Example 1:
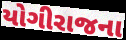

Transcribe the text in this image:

યોગીરાજના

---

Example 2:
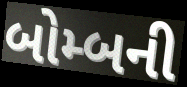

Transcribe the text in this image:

બોમ્બની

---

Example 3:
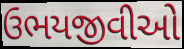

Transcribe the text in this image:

ઉભયજીવીઓ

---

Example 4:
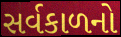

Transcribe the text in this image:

સર્વકાળનો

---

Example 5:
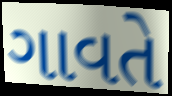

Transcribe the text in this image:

ગાવતે